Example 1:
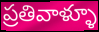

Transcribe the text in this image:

ప్రతివాళ్ళూ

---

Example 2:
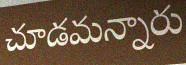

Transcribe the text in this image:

చూడమన్నారు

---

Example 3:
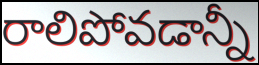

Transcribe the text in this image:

రాలిపోవడాన్నీ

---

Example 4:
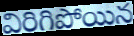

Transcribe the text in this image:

విరిగిపోయిన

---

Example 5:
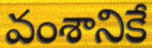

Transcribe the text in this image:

వంశానికే